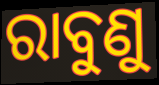
ରାବୁଣୁ